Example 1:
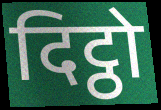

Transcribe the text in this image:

दिट्ठो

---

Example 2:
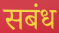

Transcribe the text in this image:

सबंध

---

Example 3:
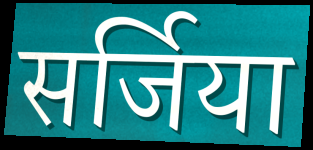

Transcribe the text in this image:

सर्जिया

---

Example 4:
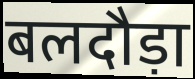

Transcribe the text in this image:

बलदौड़ा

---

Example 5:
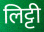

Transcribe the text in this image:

लिट्टी